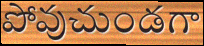
పోవుచుండగా